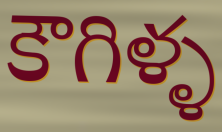
కౌగిళ్ళ